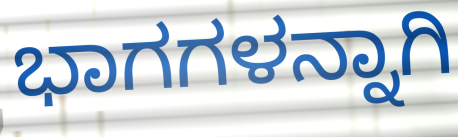
ಭಾಗಗಳನ್ನಾಗಿ